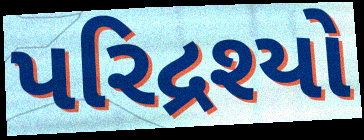
પરિદ્રશ્યો